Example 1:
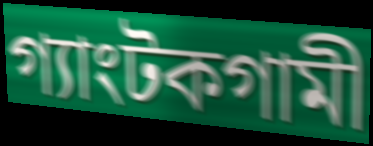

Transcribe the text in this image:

গ্যাংটকগামী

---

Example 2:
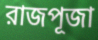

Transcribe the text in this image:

রাজপূজা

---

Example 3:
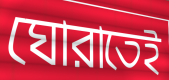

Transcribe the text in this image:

ঘোরাতেই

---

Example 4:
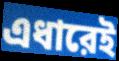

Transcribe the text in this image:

এধারেই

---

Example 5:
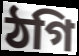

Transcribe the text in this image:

ঠগি